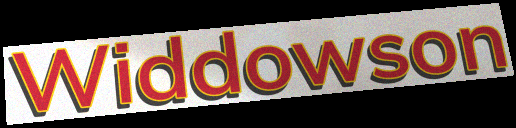
Widdowson